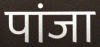
पांजा